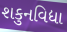
શકુનવિદ્યા